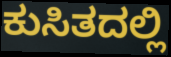
ಕುಸಿತದಲ್ಲಿ